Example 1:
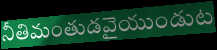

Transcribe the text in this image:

నీతిమంతుడవైయుండుట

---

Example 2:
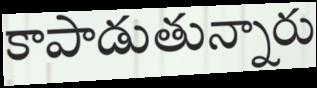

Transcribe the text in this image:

కాపాడుతున్నారు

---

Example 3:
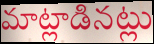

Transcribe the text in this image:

మాట్లాడినట్లు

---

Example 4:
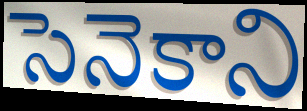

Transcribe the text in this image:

సెనెకాని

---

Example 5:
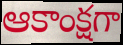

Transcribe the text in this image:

ఆకాంక్షగా